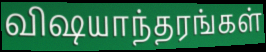
விஷயாந்தரங்கள்